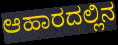
ಆಹಾರದಲ್ಲಿನ